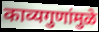
काव्यगुणांमुळे